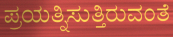
ಪ್ರಯತ್ನಿಸುತ್ತಿರುವಂತೆ